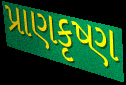
પ્રાણકૃષ્ણ